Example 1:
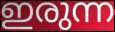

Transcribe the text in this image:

ഇരുന്ന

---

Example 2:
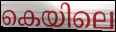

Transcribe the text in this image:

കെയിലെ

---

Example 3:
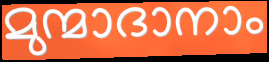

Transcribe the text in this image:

മുന്മാദാനാം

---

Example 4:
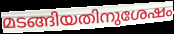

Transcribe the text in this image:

മടങ്ങിയതിനുശേഷം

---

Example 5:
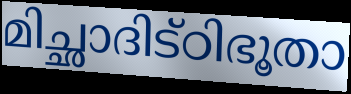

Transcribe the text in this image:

മിച്ഛാദിട്ഠിഭൂതാ